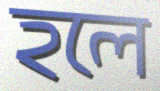
হলে